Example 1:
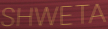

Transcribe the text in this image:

SHWETA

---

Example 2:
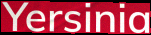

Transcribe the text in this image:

Yersinia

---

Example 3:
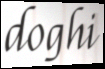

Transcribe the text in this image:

doghi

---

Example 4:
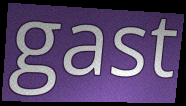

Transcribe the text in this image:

gast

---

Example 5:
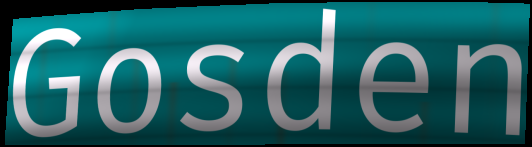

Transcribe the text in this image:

Gosden